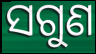
ସଗୁଣ